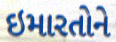
ઇમારતોને